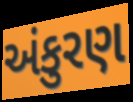
અંકુરણ